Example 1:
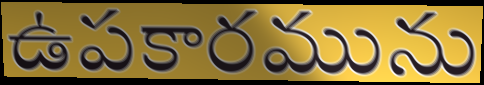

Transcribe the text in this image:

ఉపకారమును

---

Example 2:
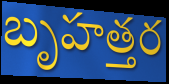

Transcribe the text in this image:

బృహత్తర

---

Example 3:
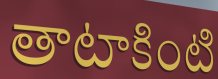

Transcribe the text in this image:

తాటాకింటి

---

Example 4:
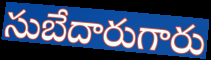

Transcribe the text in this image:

సుబేదారుగారు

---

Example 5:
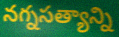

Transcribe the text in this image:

నగ్నసత్యాన్ని